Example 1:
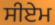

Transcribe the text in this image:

ਸੀਏਮ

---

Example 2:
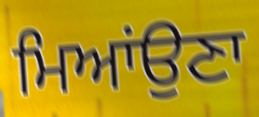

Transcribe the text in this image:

ਮਿਆਂਉਣਾ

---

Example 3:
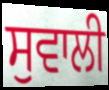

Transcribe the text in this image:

ਸੁਵਾਲੀ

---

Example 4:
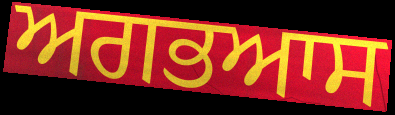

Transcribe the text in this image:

ਅਗਭਆਸ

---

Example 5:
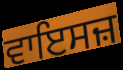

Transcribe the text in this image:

ਵਾਇਸਜ਼